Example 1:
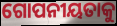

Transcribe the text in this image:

ଗୋପନୀୟତାକୁ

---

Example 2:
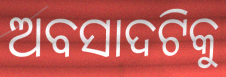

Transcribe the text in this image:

ଅବସାଦଟିକୁ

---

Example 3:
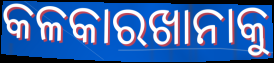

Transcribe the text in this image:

କଳକାରଖାନାକୁ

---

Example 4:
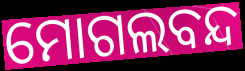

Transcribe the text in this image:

ମୋଗଲବନ୍ଦ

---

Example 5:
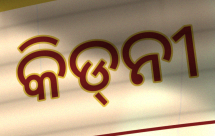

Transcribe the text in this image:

କିଡ୍‍ନୀ